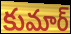
కుమార్